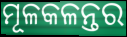
ମୂଳକଳନ୍ତର